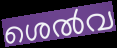
ശെൽവ